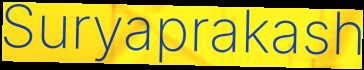
Suryaprakash